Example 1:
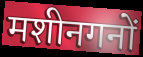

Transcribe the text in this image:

मशीनगनों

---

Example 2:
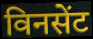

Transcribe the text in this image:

विनसेंट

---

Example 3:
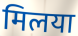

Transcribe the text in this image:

मिलया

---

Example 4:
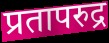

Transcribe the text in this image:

प्रतापरुद्र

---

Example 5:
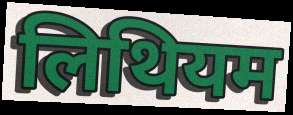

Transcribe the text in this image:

लिथियम